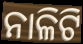
ନାଳିଟି